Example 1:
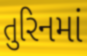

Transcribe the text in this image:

તુરિનમાં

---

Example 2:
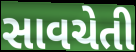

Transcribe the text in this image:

સાવચેતી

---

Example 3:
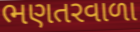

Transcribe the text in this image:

ભણતરવાળા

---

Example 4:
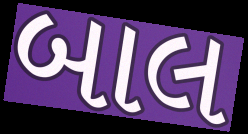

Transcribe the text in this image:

બાલ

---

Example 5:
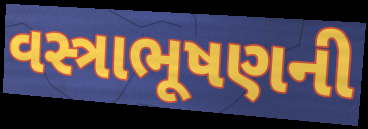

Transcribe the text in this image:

વસ્ત્રાભૂષણની